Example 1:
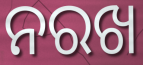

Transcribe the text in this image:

ନରଖ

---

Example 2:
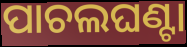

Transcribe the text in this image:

ପାଚଲଘଣ୍ଟା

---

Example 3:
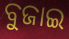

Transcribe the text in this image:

ବୁଜାଇ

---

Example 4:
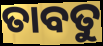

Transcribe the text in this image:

ତାବତୁ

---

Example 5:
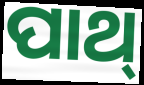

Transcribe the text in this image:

ପାଥ୍